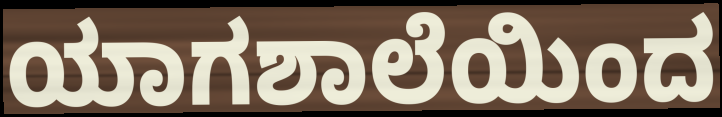
ಯಾಗಶಾಲೆಯಿಂದ